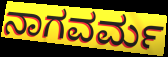
ನಾಗವರ್ಮ